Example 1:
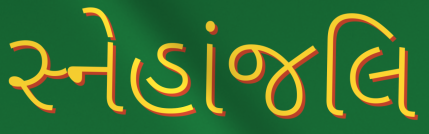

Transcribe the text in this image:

સ્નેહાંજલિ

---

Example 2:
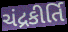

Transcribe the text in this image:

ચંદ્રકીર્તિ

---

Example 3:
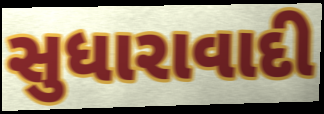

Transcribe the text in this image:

સુધારાવાદી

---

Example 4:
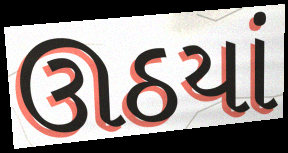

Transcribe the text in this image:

ઊઠયાં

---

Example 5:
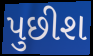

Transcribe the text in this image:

પુછીશ